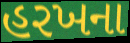
હરખના